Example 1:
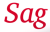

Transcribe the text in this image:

Sag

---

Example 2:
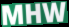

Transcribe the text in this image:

MHW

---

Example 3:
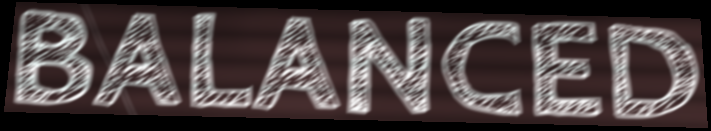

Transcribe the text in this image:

BALANCED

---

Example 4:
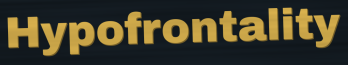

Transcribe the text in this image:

Hypofrontality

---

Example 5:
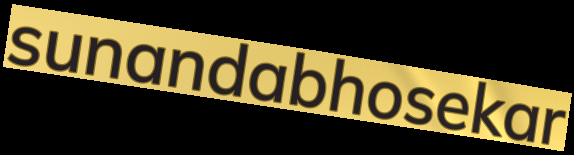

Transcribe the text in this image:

sunandabhosekar